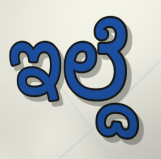
ಇಲ್ದೆ